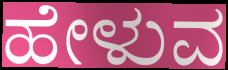
ಹೇಳುವ